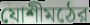
যোশীমঠের